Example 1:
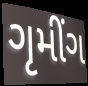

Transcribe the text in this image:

ગૃમીંગ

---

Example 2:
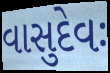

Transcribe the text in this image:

વાસુદેવઃ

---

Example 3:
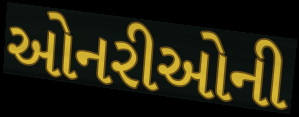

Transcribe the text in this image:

ઓનરીઓની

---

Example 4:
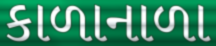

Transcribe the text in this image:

કાળાનાળા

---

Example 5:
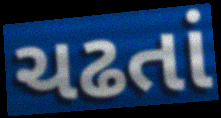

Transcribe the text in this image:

ચઢતાં